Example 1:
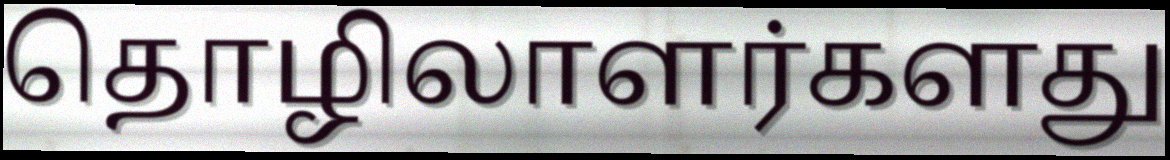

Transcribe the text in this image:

தொழிலாளர்களது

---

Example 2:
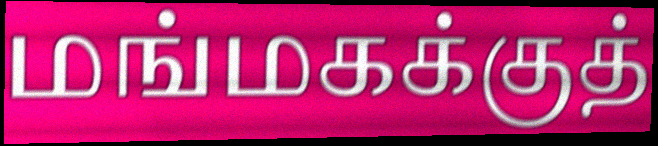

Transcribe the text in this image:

மங்மகக்குத்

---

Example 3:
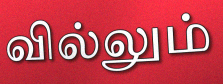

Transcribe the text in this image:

வில்லும்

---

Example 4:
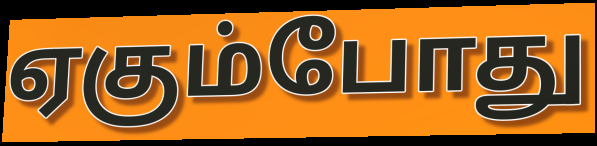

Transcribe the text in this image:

ஏகும்போது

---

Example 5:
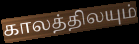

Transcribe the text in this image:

காலத்திலயும்